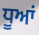
ਧੂਆਂ